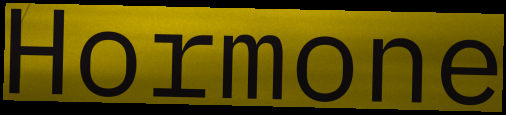
Hormone